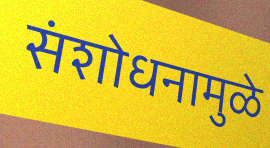
संशोधनामुळे